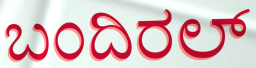
ಬಂದಿರಲ್